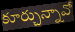
కూర్చున్నావో